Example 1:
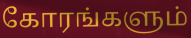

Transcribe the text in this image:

கோரங்களும்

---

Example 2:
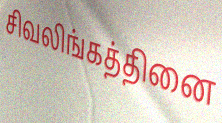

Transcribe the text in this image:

சிவலிங்கத்தினை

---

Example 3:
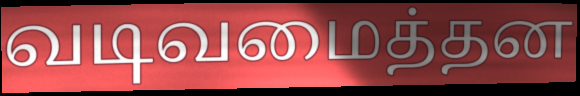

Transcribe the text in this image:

வடிவமைத்தன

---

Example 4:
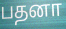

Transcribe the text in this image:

பதனா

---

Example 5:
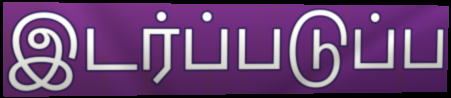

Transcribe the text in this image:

இடர்ப்படுப்ப